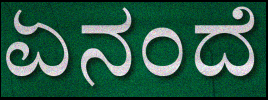
ಏನಂದೆ